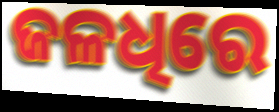
ଜଳଧିରେ